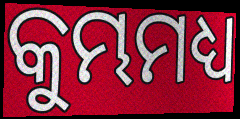
କୁମ୍ଭମଧ୍ୟ